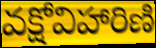
వక్షోవిహారిణి